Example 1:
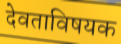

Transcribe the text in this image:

देवताविषयक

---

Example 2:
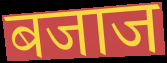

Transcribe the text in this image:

बजाज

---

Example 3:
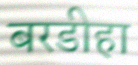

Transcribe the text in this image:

बरडीहा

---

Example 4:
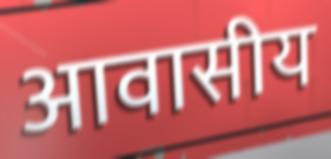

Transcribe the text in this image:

आवासीय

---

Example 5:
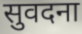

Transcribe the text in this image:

सुवदना